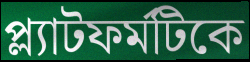
প্ল্যাটফর্মটিকে